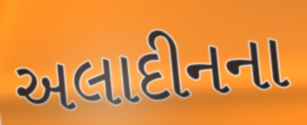
અલાદીનના